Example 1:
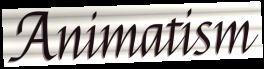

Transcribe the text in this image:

Animatism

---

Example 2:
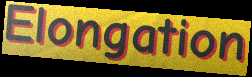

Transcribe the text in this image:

Elongation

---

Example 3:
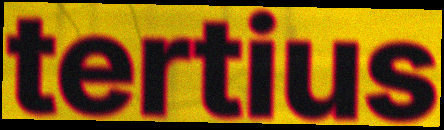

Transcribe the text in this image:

tertius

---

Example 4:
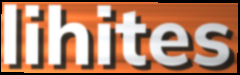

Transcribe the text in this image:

lihites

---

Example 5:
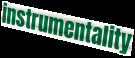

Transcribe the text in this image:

instrumentality